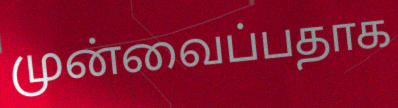
முன்வைப்பதாக